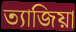
ত্যাজিয়া